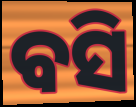
ବସି